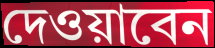
দেওয়াবেন